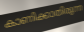
കാണിക്കാതിരുന്ന